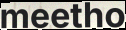
meetho